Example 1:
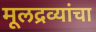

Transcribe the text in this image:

मूलद्रव्यांचा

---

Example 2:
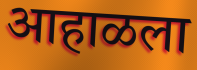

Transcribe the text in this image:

आहाळला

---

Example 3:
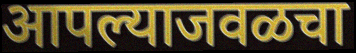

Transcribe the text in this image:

आपल्याजवळचा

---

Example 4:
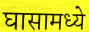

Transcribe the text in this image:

घासामध्ये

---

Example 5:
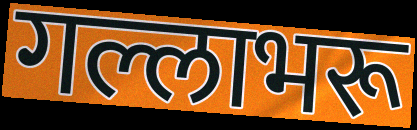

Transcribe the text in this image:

गल्लाभरू